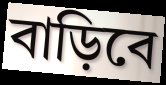
বাড়িবে